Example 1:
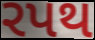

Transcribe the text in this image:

રપથ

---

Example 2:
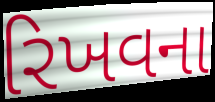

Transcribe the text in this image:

રિખવના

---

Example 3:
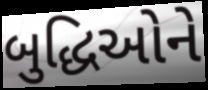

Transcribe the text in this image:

બુદ્ધિઓને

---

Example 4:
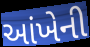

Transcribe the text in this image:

આંખેની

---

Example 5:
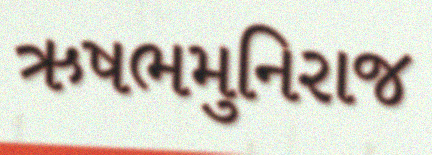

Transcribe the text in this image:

ઋષભમુનિરાજ